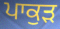
ਪਾਕੁੜ